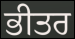
ਭੀਤਰ